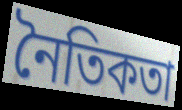
নৈতিকতা